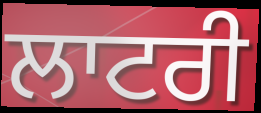
ਲਾਟਰੀ